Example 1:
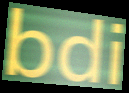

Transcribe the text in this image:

bdi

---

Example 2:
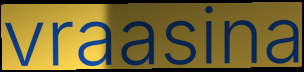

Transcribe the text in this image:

vraasina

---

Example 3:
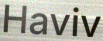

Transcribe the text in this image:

Haviv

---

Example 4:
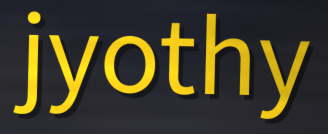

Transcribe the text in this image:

jyothy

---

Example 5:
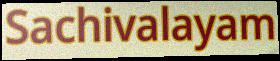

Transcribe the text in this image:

Sachivalayam